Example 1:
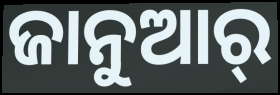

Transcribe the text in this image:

ଜାନୁଆର୍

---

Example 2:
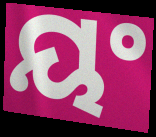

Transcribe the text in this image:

ୟଂ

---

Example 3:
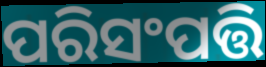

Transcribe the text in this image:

ପରିସଂପତ୍ତି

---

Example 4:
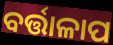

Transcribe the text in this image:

ବର୍ତ୍ତାଳାପ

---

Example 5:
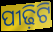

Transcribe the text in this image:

ପୀଢ଼ିଟି